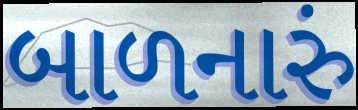
બાળનારું